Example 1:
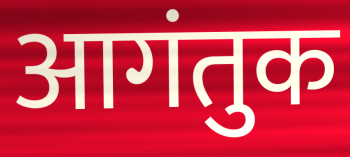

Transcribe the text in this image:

आगंतुक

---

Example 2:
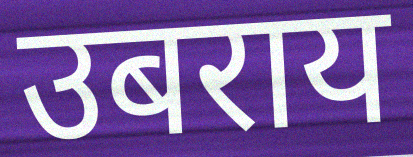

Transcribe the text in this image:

उबराय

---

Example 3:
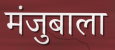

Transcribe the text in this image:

मंजुबाला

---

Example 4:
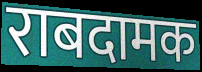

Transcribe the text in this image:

राबदामक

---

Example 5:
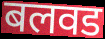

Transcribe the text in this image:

बलवड